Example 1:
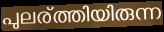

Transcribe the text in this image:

പുലര്ത്തിയിരുന്ന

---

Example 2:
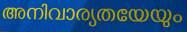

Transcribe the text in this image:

അനിവാര്യതയേയും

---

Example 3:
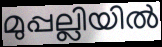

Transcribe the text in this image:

മുപ്പല്ലിയിൽ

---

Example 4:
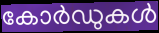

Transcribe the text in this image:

കോർഡുകൾ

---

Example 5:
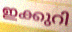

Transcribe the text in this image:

ഇക്കുറി